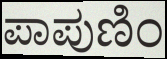
ಪಾಪುಣಿಂ